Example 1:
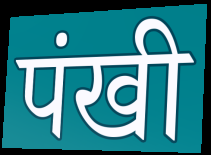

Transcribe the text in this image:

पंखी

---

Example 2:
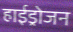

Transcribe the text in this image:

हाईड्रोजन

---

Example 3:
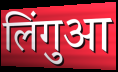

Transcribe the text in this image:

लिंगुआ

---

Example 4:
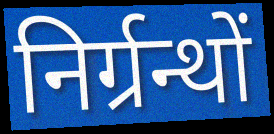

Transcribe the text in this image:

निर्ग्रन्थों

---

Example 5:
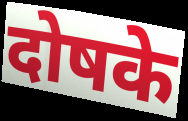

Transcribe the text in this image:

दोषके